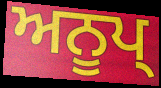
ਅਨੂਪ੍